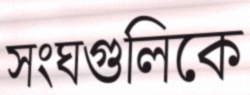
সংঘগুলিকে